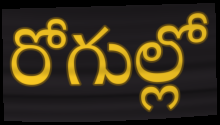
రోగుల్లో